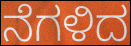
ನೆಗಳಿದ